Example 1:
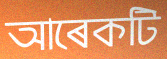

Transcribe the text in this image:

আৰেকটি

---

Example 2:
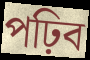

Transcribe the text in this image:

পঢ়িব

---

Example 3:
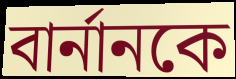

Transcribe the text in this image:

বাৰ্নানকে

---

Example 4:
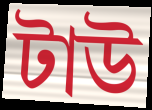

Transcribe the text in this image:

টাউ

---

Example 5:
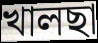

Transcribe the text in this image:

খালছা